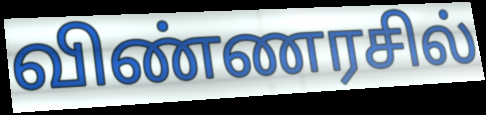
விண்ணரசில்